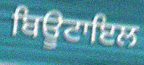
ਬਿਊਟਾਇਲ